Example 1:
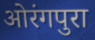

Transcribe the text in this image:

ओरंगपुरा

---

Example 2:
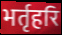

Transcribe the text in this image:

भर्तृहरि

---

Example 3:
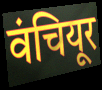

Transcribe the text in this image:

वंचियूर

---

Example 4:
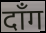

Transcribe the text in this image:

दाँग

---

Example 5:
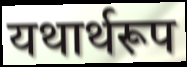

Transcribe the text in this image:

यथार्थरूप